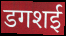
डगशई